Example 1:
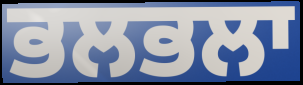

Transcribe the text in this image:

ਭਲਭਲਾ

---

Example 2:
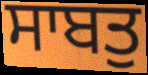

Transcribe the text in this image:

ਸਾਬਤੁ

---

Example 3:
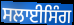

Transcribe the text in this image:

ਸਲਾਈਸਿੰਗ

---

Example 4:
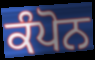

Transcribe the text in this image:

ਕੰਪੋਨ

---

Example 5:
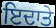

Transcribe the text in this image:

ਇਦਾਤੇ